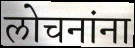
लोचनांना